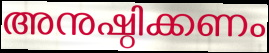
അനുഷ്ഠിക്കണം